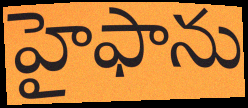
హైఫాను